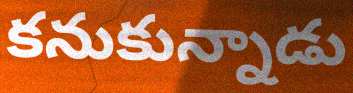
కనుకున్నాడు